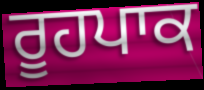
ਰੂਹਪਾਕ